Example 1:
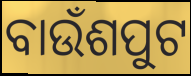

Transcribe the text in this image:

ବାଉଁଶପୁଟ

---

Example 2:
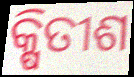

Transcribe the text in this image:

କ୍ଷିତୀଶ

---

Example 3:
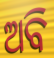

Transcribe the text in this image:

ଅବି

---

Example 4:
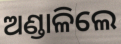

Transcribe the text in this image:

ଅଣ୍ଡାଳିଲେ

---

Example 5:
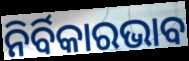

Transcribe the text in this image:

ନିର୍ବିକାରଭାବ